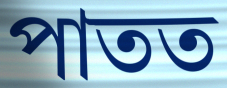
পাতত